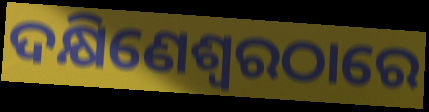
ଦକ୍ଷିଣେଶ୍ୱରଠାରେ